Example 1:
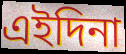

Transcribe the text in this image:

এইদিনা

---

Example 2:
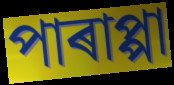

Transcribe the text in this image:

পাৰাপ্পা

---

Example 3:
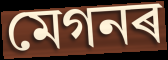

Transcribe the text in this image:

মেগনৰ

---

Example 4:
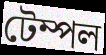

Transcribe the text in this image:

টেম্পল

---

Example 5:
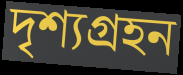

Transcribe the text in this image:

দৃশ্যগ্ৰহন